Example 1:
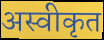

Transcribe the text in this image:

अस्वीकृत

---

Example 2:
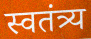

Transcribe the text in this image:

स्वतंत्र्य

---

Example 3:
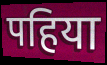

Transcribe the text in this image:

पहिया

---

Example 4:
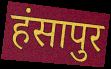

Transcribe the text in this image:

हंसापुर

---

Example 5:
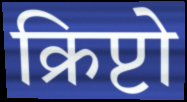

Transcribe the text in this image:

क्रिप्टो